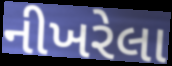
નીખરેલા